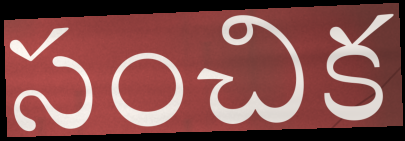
సంచిక